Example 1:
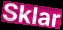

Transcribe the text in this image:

Sklar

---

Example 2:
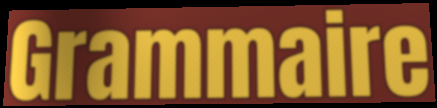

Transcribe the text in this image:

Grammaire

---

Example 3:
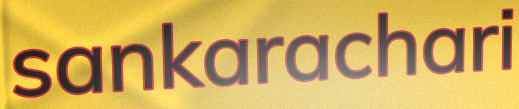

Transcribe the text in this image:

sankarachari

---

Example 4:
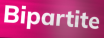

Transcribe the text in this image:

Bipartite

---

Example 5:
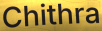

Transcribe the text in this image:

Chithra